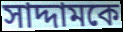
সাদ্দামকে